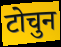
टोचुन